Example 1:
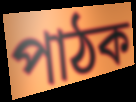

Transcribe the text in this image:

পাঠক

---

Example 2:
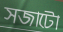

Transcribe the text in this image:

সজাটো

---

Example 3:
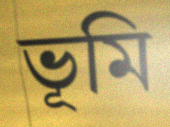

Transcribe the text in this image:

ভূমি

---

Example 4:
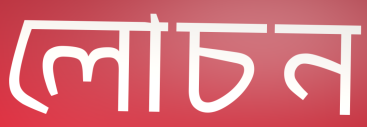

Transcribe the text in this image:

লোচন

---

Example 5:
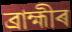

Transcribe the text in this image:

ব্ৰাহ্মীৰ